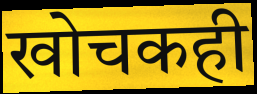
खोचकही